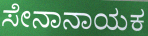
ಸೇನಾನಾಯಕ